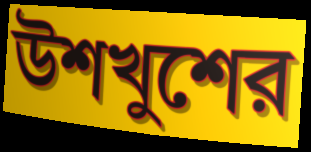
উশখুশের